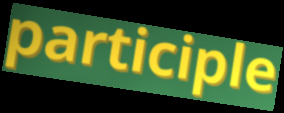
participle